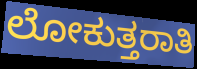
ಲೋಕುತ್ತರಾತಿ